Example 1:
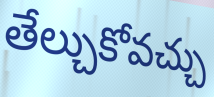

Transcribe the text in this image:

తేల్చుకోవచ్చు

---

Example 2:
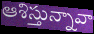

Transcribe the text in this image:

ఆశిస్తున్నావా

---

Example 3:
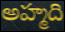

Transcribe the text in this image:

అహ్మది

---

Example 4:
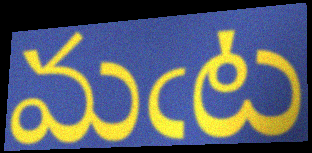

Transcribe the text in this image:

మఁట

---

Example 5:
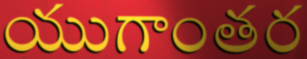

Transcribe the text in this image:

యుగాంతర